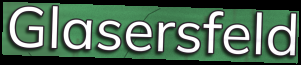
Glasersfeld